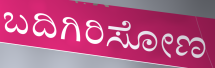
ಬದಿಗಿರಿಸೋಣ